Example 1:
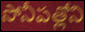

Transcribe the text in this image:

సోనీపత్లోని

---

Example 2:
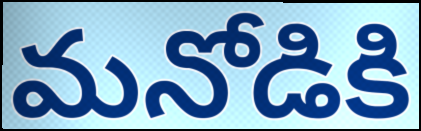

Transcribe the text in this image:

మనోడికి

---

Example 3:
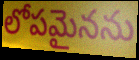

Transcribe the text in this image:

లోపమైనను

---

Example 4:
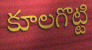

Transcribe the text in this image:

కూలగొట్టి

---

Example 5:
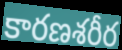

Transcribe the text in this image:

కారణశరీర